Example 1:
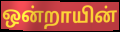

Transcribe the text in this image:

ஒன்றாயின்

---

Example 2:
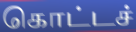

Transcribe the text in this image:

கொட்டச்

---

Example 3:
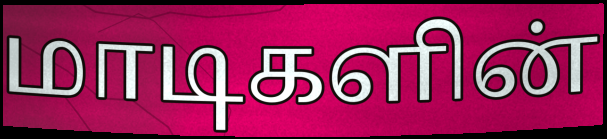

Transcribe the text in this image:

மாடிகளின்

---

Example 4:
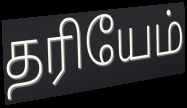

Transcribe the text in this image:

தரியேம்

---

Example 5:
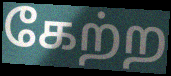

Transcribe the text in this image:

கேற்ற